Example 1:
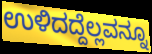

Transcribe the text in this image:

ಉಳಿದದ್ದೆಲ್ಲವನ್ನೂ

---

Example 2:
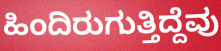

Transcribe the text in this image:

ಹಿಂದಿರುಗುತ್ತಿದ್ದೆವು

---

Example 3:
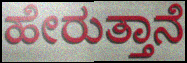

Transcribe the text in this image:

ಹೇರುತ್ತಾನೆ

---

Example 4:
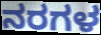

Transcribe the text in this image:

ನರಗಳ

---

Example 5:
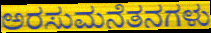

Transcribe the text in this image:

ಅರಸುಮನೆತನಗಳು